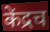
केंद्रच